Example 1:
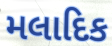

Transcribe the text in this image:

મલાદિક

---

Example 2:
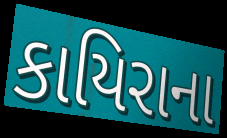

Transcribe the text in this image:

કાયિરાના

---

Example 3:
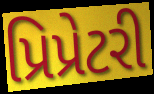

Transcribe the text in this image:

પ્રિપ્રેટરી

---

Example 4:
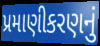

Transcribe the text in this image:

પ્રમાણીકરણનું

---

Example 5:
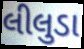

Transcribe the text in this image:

લીલુડા